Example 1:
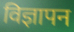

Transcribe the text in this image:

विज्ञापन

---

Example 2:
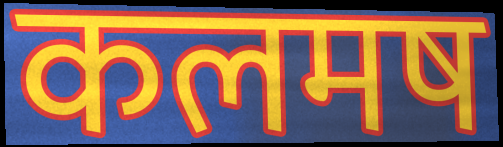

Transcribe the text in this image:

कलमष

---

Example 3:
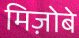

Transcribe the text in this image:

मिज़ोबे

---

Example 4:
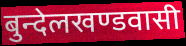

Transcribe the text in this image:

बुन्देलखण्डवासी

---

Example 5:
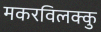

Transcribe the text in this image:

मकरविलक्कु